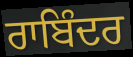
ਰਾਬਿੰਦਰ